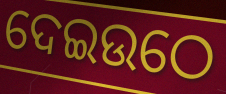
ଦେଇଉଠେ